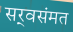
सर्वसंमत